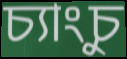
চ্যাংচু